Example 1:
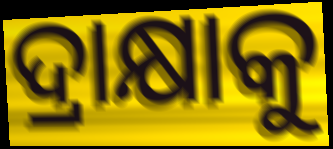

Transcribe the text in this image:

ଦ୍ରାକ୍ଷାକୁ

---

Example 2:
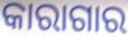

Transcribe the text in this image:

କାରାଗାର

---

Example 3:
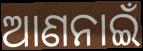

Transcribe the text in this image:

ଆଣନାଇଁ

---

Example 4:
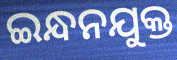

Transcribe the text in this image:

ଇନ୍ଧନଯୁକ୍ତ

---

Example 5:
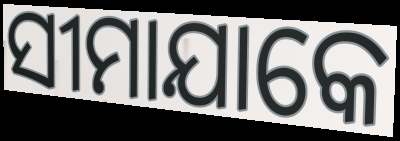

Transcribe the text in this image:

ସୀମାଯାକେ